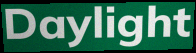
Daylight